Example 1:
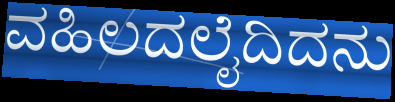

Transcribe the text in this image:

ವಹಿಲದಲೈದಿದನು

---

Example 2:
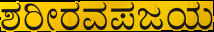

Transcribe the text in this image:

ಶರೀರವಪಜಯ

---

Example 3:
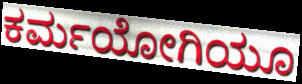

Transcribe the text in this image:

ಕರ್ಮಯೋಗಿಯೂ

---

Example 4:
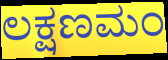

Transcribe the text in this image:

ಲಕ್ಷಣಮಂ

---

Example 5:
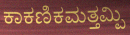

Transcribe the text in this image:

ಕಾಕಣಿಕಮತ್ತಮ್ಪಿ